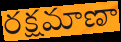
రక్షమాణా